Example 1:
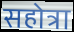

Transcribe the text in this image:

सहोत्रा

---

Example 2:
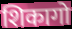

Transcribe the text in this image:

शिकागो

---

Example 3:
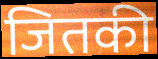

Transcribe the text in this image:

जितकी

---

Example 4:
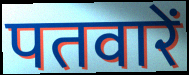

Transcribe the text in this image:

पतवारें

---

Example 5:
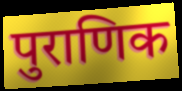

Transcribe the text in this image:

पुराणिक